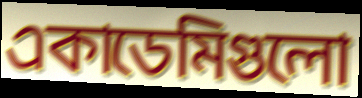
একাডেমিগুলো